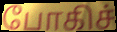
போகிச்